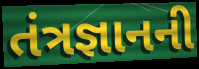
તંત્રજ્ઞાનની